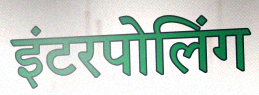
इंटरपोलिंग